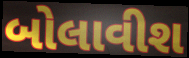
બોલાવીશ